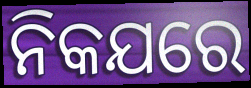
ନିକଯରେ